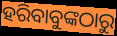
ହରିବାବୁଙ୍କଠାରୁ